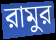
রামুর